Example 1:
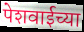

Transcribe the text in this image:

पेशवाईच्या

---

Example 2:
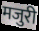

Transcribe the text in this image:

मजुरी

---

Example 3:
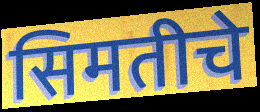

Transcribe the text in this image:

सिमतीचे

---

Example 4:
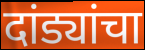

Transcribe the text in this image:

दांड्यांचा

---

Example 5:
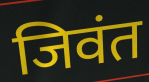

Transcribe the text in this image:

जिवंत